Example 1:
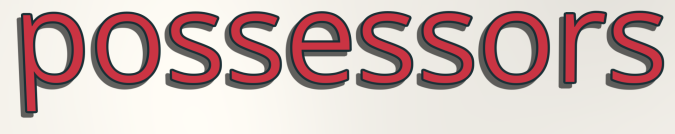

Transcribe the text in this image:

possessors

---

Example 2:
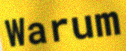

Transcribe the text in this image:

Warum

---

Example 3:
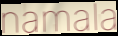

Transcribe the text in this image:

namala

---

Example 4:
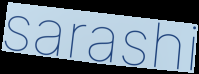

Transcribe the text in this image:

sarashi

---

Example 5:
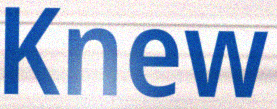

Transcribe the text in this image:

Knew